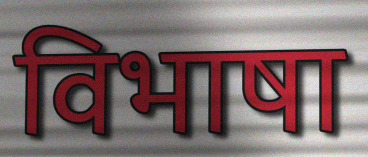
विभाषा